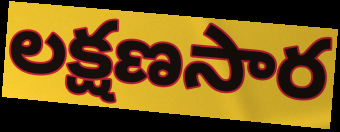
లక్షణసార